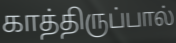
காத்திருப்பால்